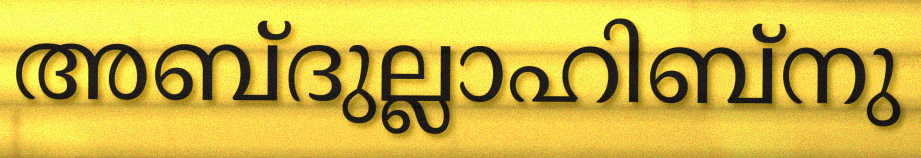
അബ്ദുല്ലാഹിബ്നു